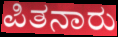
ಪಿತನಾರು